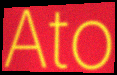
Ato